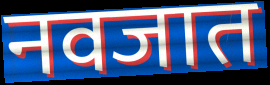
नवजात